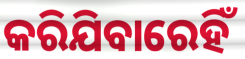
କରିଯିବାରେହିଁ